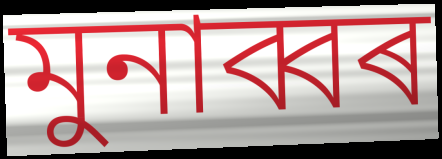
মুনাব্বৰ